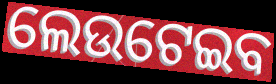
ଲେଉଟେଇବ